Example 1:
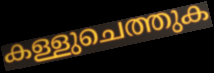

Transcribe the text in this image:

കള്ളുചെത്തുക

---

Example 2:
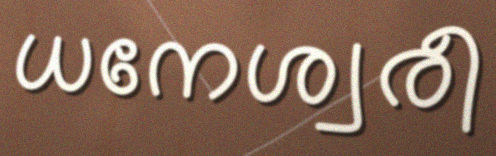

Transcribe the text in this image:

ധനേശ്വരീ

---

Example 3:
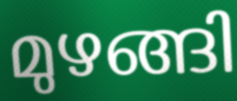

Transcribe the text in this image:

മുഴങ്ങി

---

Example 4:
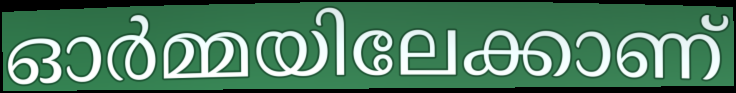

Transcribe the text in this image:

ഓർമ്മയിലേക്കാണ്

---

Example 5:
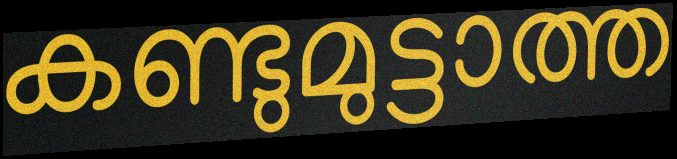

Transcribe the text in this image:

കണ്ടുമുട്ടാത്ത